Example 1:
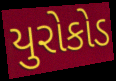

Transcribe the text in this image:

યુરોકોડ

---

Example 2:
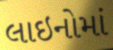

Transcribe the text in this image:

લાઇનોમાં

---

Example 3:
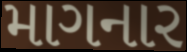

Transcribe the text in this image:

માગનાર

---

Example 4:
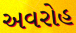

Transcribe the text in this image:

અવરોહ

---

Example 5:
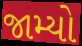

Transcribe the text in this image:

જામ્યો